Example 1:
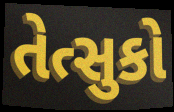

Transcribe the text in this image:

તેત્સુકો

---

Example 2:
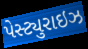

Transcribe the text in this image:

પેસ્ટ્યુરાઇઝ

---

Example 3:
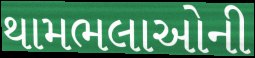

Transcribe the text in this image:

થામભલાઓની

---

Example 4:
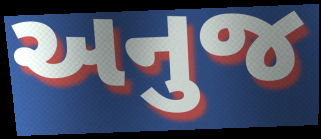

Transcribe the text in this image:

અનુજ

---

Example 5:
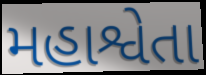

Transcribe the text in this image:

મહાશ્વેતા